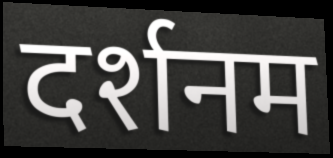
दर्शनम